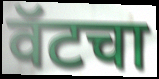
वॅटचा